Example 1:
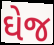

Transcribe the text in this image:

ઘેજ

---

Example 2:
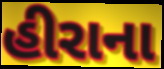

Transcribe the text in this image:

હીરાના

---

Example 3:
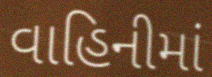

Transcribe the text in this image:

વાહિનીમાં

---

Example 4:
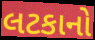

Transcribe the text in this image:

લટકાનો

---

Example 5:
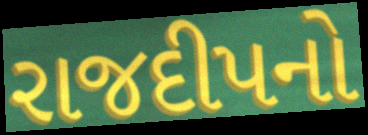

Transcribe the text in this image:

રાજદીપનો